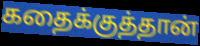
கதைக்குத்தான்